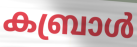
കബ്രാൾ